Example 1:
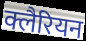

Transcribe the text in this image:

क्लैरियन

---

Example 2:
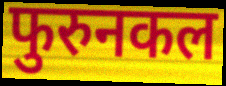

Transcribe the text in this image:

फुरुनकल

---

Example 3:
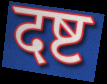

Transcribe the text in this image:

दष्ट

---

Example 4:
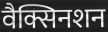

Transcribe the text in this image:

वैक्सिनशन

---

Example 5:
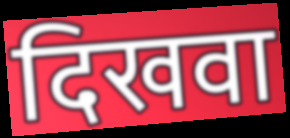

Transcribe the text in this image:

दिखवा